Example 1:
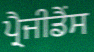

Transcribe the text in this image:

ਪ੍ਰੈਜੀਡੈਂਸ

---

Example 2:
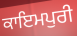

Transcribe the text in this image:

ਕਾਇਮਪੁਰੀ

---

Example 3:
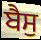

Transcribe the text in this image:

ਬੈਸੁ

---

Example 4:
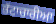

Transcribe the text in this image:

ਭੱਟਾਚਾਰੀਆ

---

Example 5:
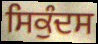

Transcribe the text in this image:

ਸਿਕੁੰਦਸ